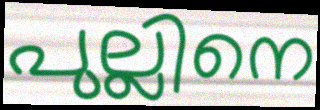
പുല്ലിനെ